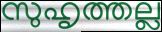
സുഹൃത്തല്ല